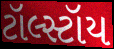
ટૉલ્સ્ટૉય